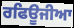
ਰਫਿਊਜੀਆ